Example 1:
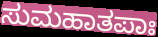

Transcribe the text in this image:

ಸುಮಹಾತಪಾಃ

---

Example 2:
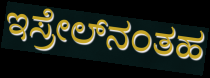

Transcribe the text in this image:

ಇಸ್ರೇಲ್‌ನಂತಹ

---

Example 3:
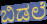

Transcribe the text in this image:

ಬಿಡಲೆ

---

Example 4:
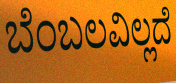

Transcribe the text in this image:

ಬೆಂಬಲವಿಲ್ಲದೆ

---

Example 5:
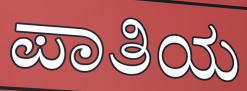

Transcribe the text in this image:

ಪಾತಿಯ